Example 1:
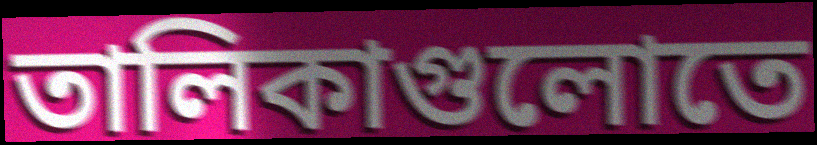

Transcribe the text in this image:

তালিকাগুলোতে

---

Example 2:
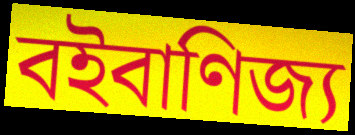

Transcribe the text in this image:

বইবাণিজ্য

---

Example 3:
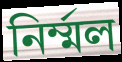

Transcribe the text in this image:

নির্ম্মল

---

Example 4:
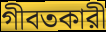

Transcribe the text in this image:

গীবতকারী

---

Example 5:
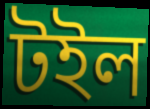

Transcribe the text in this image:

টইল